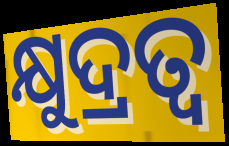
କ୍ଷୁଦ୍ରତ୍ୱ